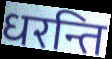
धरन्ति